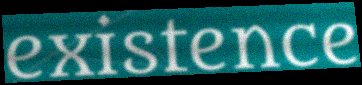
existence